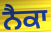
ਨੈਕਾ